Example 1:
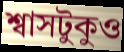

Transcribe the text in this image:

শ্বাসটুকুও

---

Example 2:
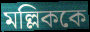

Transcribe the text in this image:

মল্লিককে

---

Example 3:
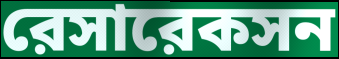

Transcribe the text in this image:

রেসারেকসন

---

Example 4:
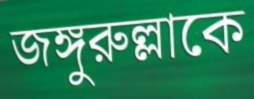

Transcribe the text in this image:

জঙ্গুরুল্লাকে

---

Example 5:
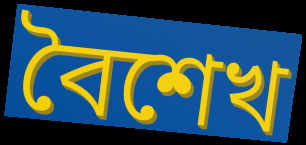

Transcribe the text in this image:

বৈশেখ